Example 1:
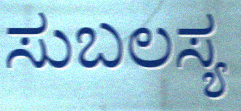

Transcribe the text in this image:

ಸುಬಲಸ್ಯ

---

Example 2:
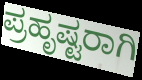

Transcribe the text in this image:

ಪ್ರಹೃಷ್ಟರಾಗಿ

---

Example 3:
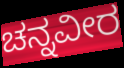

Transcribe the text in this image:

ಚನ್ನವೀರ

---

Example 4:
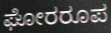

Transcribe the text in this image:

ಘೋರರೂಪ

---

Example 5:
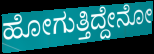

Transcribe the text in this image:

ಹೋಗುತ್ತಿದ್ದೇನೋ